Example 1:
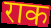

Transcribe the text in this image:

राक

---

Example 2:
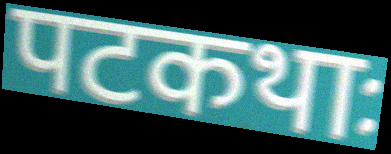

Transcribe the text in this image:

पटकथाः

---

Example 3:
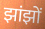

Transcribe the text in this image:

झांझों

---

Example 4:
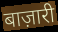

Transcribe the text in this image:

बाज़ारी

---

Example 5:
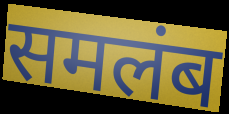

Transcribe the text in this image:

समलंब